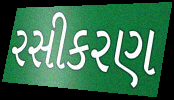
રસીકરણ